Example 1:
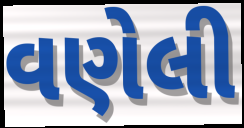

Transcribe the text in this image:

વણેલી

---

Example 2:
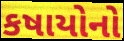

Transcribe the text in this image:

કષાયોનો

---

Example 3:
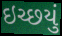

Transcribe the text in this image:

ઇચ્છયું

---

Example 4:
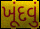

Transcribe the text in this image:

ખૂંદવું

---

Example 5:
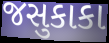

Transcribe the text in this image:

જસુકાકા